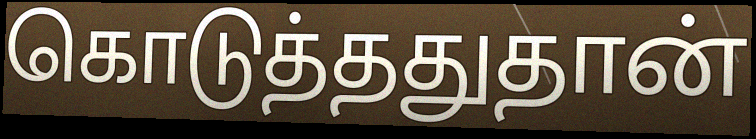
கொடுத்ததுதான்